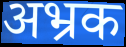
अभ्रक